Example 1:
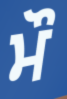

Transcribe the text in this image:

ਮੌ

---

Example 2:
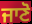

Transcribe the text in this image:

ਜਾਣੋ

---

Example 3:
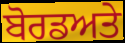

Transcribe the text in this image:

ਬੋਰਡਅਤੇ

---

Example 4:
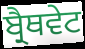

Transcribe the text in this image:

ਬ੍ਰੈਥਵੇਟ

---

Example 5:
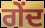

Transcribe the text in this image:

ਗੇਂਦ